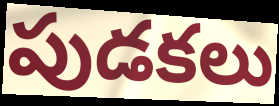
పుడకలు